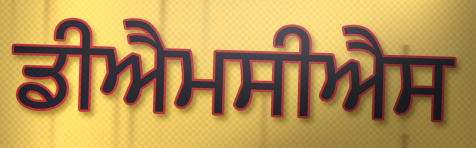
ਡੀਐਮਸੀਐਸ